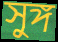
সুঙ্গ